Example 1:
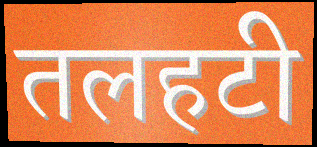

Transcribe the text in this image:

तलहटी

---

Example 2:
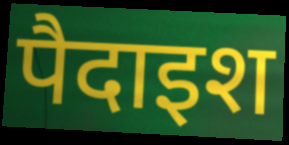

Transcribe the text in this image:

पैदाइश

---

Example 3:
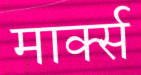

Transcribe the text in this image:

मार्क्स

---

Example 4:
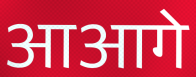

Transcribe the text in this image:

आआगे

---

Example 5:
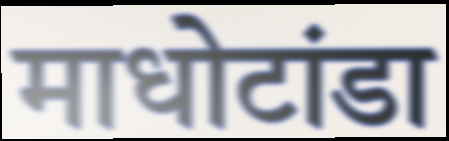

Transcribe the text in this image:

माधोटांडा